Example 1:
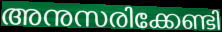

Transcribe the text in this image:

അനുസരിക്കേണ്ടി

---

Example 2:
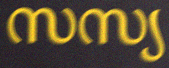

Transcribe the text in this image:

സസ്യ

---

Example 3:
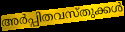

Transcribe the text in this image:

അർപ്പിതവസ്തുക്കൾ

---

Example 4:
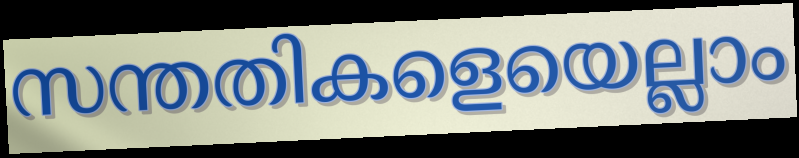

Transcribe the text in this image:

സന്തതികളെയെല്ലാം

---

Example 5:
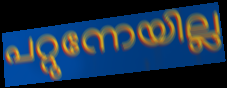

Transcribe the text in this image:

പറ്റുന്നേയില്ല